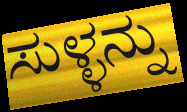
ಸುಳ್ಳನ್ನು